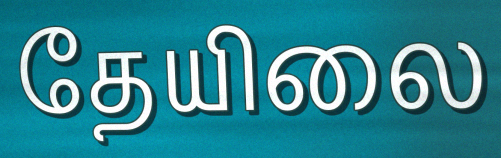
தேயிலை